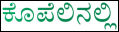
ಕೊಪೆಲಿನಲ್ಲಿ